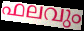
ഫലവും